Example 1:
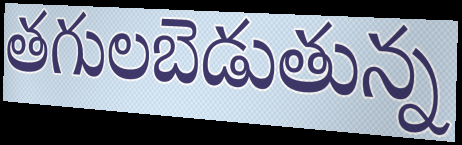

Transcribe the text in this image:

తగులబెడుతున్న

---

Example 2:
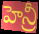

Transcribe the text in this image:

హెన్రీ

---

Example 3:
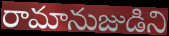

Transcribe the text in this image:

రామానుజుడిని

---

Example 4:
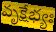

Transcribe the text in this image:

వృక్షేభ్యః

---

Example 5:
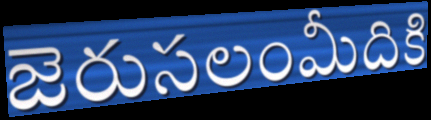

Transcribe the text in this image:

జెరుసలంమీదికి